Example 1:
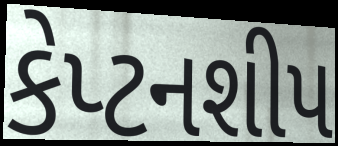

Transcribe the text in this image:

કેપ્ટનશીપ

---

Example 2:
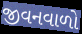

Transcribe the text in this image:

જીવનવાળો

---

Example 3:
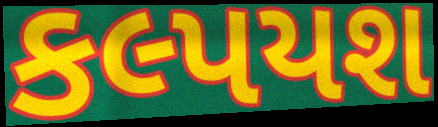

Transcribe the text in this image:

કલ્પયશ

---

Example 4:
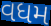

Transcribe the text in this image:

વધમ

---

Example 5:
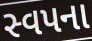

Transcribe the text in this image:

સ્વપના